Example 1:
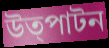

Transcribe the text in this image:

উত্পাটন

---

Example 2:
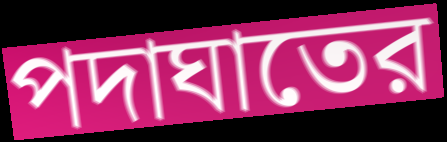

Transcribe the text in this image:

পদাঘাতের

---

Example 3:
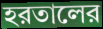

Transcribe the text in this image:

হরতালের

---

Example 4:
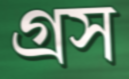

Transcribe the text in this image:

গ্রস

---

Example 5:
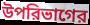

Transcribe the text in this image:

উপরিভাগের